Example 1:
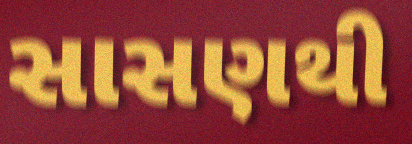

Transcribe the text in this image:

સાસણથી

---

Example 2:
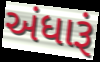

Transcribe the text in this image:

અંધારૂં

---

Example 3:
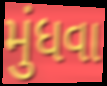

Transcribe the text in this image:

મુંધવા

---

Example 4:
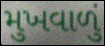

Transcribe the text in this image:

મુખવાળું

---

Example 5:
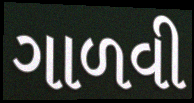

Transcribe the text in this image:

ગાળવી